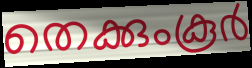
തെക്കുംകൂർ